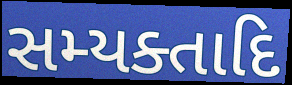
સમ્યક્તાદિ